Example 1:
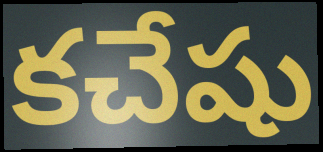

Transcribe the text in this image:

కచేషు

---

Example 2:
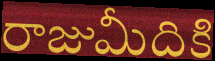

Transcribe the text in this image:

రాజుమీదికి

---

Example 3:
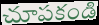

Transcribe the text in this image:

చూపకండి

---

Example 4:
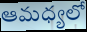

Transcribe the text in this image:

ఆమధ్యలో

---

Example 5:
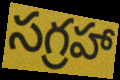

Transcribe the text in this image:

సగ్రహా